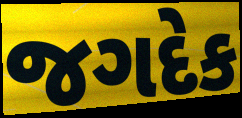
જગદેક